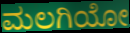
ಮಲಗಿಯೋ